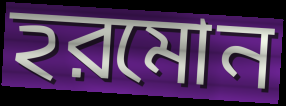
হরমোন